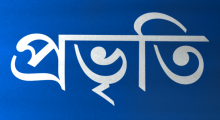
প্ৰভৃতি